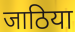
जाठिया